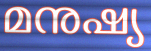
മനുഷ്യ